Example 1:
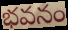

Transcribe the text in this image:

భవనం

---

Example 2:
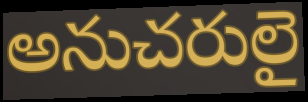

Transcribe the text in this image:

అనుచరులై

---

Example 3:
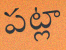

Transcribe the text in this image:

పట్లా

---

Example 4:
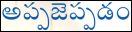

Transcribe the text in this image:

అప్పజెప్పడం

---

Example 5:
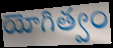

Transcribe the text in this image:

యోగిత్వం